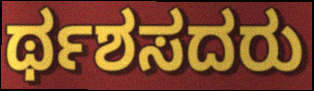
ರ್ಥಶಸದರು